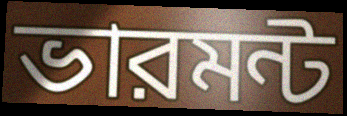
ভারমন্ট